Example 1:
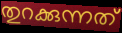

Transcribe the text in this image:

തുറക്കുന്നത്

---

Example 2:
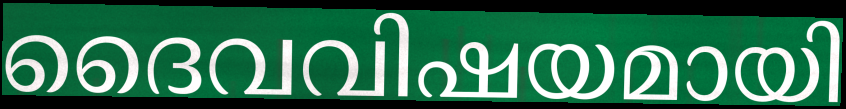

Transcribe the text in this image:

ദൈവവിഷയമായി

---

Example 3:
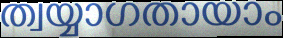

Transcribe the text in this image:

ത്വയ്യാഗതായാം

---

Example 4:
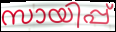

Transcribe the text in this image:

സായിപ്പ്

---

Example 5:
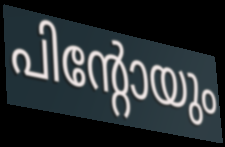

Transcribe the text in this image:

പിന്റോയും